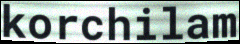
korchilam